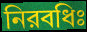
নিরবধিঃ